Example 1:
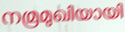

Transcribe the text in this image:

നമ്രമുഖിയായി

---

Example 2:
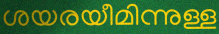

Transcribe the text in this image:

ശയരയീമിന്നുള്ള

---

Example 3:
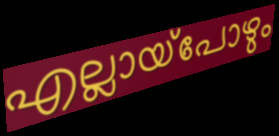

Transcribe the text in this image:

എല്ലായ്‌പോഴും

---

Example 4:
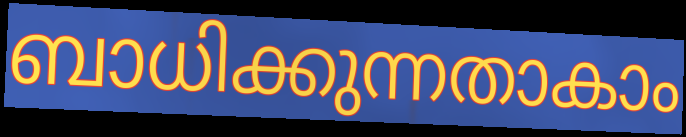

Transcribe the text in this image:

ബാധിക്കുന്നതാകാം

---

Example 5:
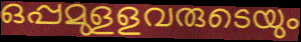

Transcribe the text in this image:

ഒപ്പമുളളവരുടെയും